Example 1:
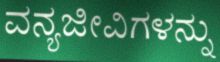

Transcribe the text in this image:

ವನ್ಯಜೀವಿಗಳನ್ನು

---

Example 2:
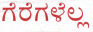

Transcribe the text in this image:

ಗೆರೆಗಳೆಲ್ಲ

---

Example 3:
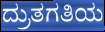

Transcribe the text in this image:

ದ್ರುತಗತಿಯ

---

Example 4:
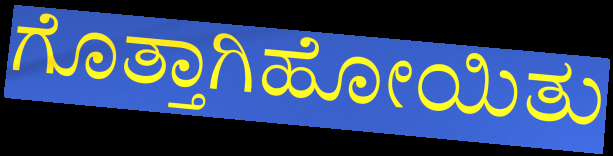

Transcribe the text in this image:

ಗೊತ್ತಾಗಿಹೋಯಿತು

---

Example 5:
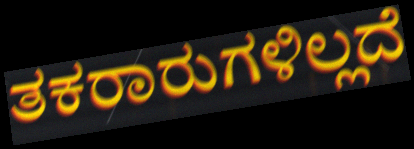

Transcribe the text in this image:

ತಕರಾರುಗಳಿಲ್ಲದೆ